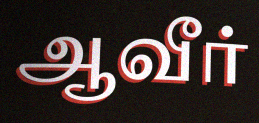
ஆவீர்